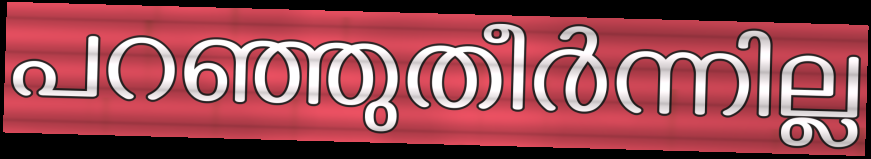
പറഞ്ഞുതീർന്നില്ല